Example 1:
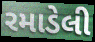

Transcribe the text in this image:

રમાડેલી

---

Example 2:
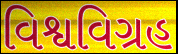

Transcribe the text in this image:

વિશ્વવિગ્રહ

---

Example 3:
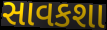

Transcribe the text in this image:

સાવકશા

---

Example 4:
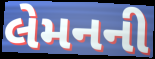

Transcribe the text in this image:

લેમનની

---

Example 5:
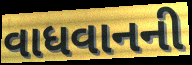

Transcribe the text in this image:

વાધવાનની